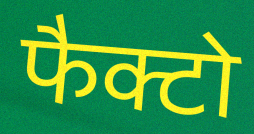
फैक्टो